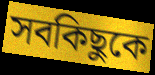
সবকিছুকে